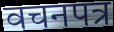
वचनपत्र